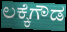
ಲಕ್ಕೆಗೌಡ